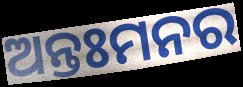
ଅନ୍ତଃମନର